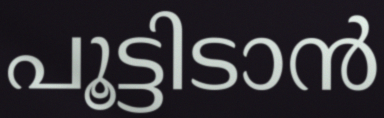
പൂട്ടിടാൻ